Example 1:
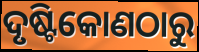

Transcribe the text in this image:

ଦୃଷ୍ଟିକୋଣଠାରୁ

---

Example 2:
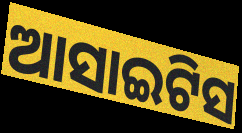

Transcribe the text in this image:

ଆସାଇଟିସ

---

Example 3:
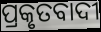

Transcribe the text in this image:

ପ୍ରକୃତବାଦୀ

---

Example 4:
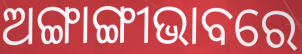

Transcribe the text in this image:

ଅଙ୍ଗାଙ୍ଗୀଭାବରେ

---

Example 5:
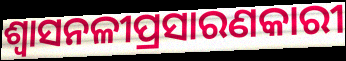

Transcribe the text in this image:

ଶ୍ୱାସନଳୀପ୍ରସାରଣକାରୀ